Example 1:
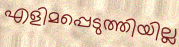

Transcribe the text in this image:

എളിമപ്പെടുത്തിയില്ല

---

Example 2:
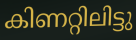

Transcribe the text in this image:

കിണറ്റിലിട്ടു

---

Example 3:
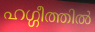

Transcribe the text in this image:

ഹഗ്ഗീത്തിൽ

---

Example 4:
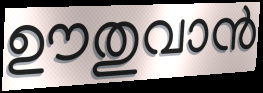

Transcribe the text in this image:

ഊതുവാൻ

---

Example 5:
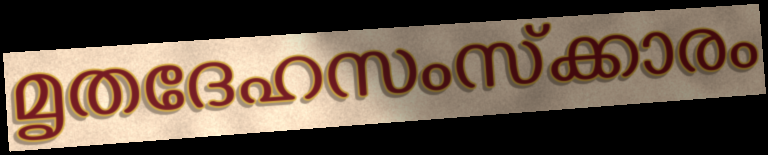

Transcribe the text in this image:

മൃതദേഹസംസ്‌ക്കാരം